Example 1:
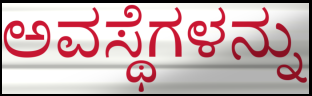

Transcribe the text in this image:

ಅವಸ್ಥೆಗಳನ್ನು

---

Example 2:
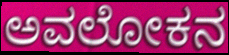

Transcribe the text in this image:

ಅವಲೋಕನ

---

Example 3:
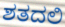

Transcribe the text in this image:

ಶತದಲಿ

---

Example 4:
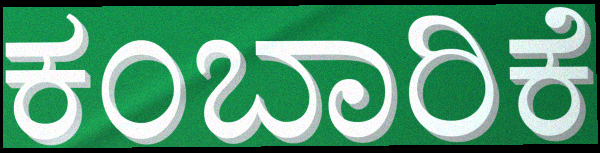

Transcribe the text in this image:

ಕಂಬಾರಿಕೆ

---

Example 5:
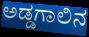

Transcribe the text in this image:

ಅಡ್ಡಗಾಲಿನ